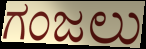
ಗಂಜಲು